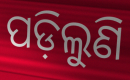
ପଡ଼ିଲୁଣି